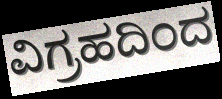
ವಿಗ್ರಹದಿಂದ